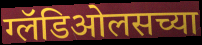
ग्लॅडिओलसच्या